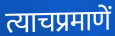
त्याचप्रमाणें